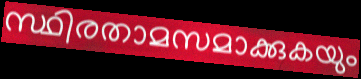
സ്ഥിരതാമസമാക്കുകയും